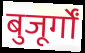
बुजूर्गों